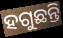
ହଗୁଛନ୍ତି